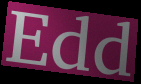
Edd